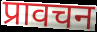
प्रावचन